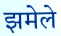
झमेले